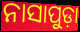
ନାସାପୁଡ଼ା